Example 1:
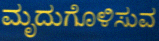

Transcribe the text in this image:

ಮೃದುಗೊಳಿಸುವ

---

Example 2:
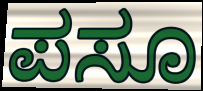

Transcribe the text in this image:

ಪಸೂ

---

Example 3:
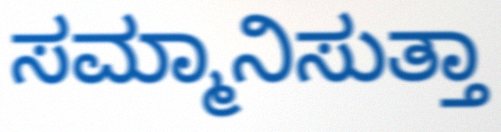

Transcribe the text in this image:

ಸಮ್ಮಾನಿಸುತ್ತಾ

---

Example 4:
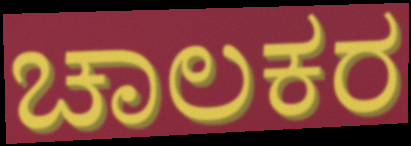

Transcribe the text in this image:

ಚಾಲಕರ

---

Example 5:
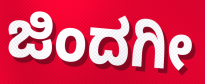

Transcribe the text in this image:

ಜಿಂದಗೀ